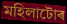
মহিলাটোৰ